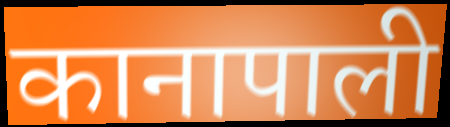
कानापाली